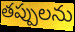
తప్పులను